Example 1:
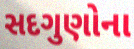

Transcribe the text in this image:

સદગુણોના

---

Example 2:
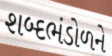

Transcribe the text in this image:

શબ્દભંડોળને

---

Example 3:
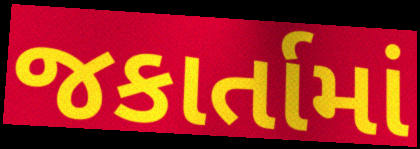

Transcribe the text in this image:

જકાર્તામાં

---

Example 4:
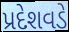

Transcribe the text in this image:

પ્રદેશવડે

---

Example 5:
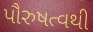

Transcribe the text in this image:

પૌરુષત્વથી